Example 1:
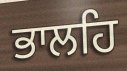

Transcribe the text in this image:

ਭਾਲਹਿ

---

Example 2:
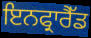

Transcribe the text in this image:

ਇਨਫ੍ਰਾਰੈੱਡ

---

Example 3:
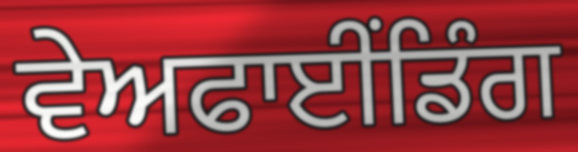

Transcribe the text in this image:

ਵੇਅਫਾਈਂਡਿੰਗ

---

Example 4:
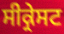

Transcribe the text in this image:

ਸੀਕ੍ਰੇਸਟ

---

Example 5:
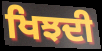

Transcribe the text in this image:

ਖਿਝਦੀ